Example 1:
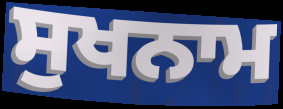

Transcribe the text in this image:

ਸੁਖਨਾਮ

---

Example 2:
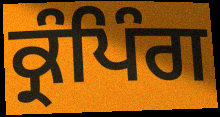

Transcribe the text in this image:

ਕ੍ਰੰਪਿੰਗ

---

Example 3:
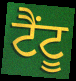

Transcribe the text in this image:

ਟੈਂਟੂ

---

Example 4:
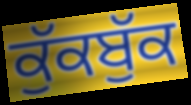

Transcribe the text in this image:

ਕੁੱਕਬੁੱਕ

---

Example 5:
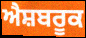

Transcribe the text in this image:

ਐਸ਼ਬਰੂਕ